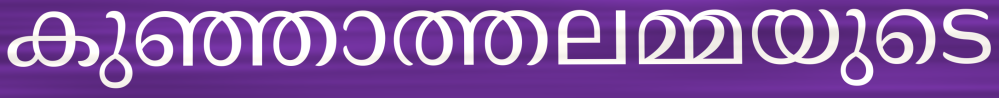
കുഞ്ഞാത്തലമ്മയുടെ